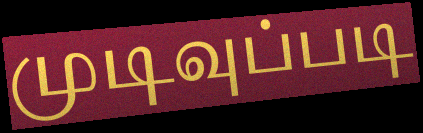
முடிவுப்படி